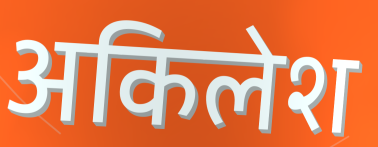
अकिलेश